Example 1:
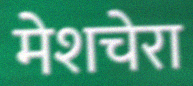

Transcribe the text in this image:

मेशचेरा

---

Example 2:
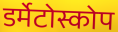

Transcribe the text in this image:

डर्मेटोस्कोप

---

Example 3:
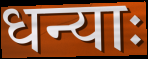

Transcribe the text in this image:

धन्याः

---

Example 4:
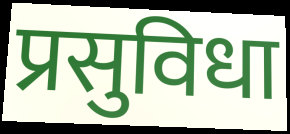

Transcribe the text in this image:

प्रसुविधा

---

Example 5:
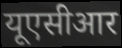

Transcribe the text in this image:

यूएसीआर